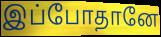
இப்போதானே